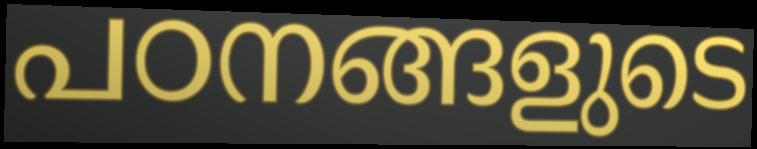
പഠനങ്ങളുടെ